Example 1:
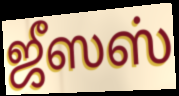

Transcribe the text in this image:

ஜீஸஸ்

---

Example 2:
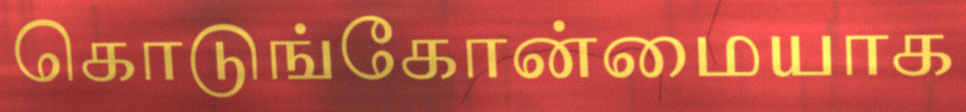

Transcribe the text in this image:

கொடுங்கோன்மையாக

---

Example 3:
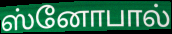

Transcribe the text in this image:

ஸ்னோபால்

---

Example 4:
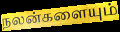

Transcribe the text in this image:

நலன்களையும்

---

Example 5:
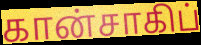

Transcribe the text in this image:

கான்சாகிப்